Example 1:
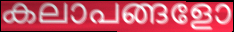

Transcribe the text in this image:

കലാപങ്ങളോ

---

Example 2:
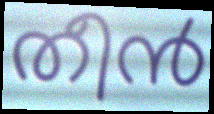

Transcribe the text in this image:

തീൻ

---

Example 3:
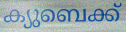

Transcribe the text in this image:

ക്യുബെക്ക്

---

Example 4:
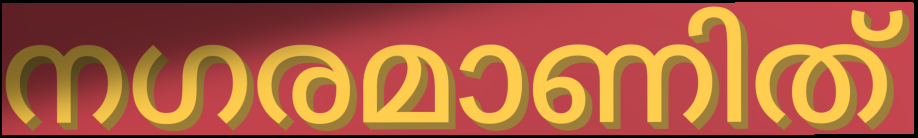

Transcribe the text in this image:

നഗരമാണിത്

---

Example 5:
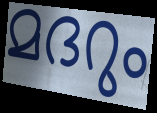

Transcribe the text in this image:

മദറും